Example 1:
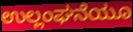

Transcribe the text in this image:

ಉಲ್ಲಂಘನೆಯೂ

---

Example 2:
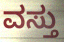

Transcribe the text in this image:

ವಸ್ತು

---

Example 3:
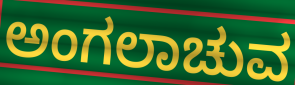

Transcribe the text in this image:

ಅಂಗಲಾಚುವ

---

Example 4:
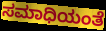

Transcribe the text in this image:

ಸಮಾಧಿಯಂತೆ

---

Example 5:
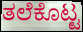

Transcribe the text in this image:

ತಲೆಕೊಟ್ಟ